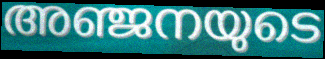
അഞ്ജനയുടെ